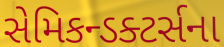
સેમિકન્ડક્ટર્સના